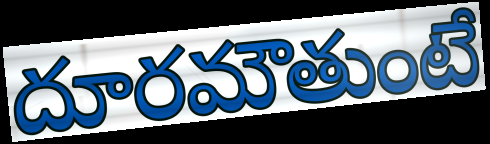
దూరమౌతుంటే